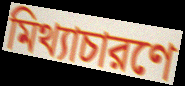
মিথ্যাচারণে